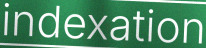
indexation